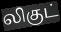
லிகுட்